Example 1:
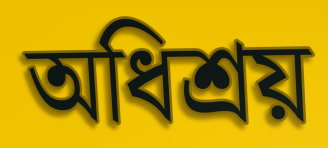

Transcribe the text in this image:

অধিশ্রয়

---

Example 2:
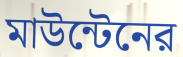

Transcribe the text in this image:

মাউন্টেনের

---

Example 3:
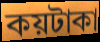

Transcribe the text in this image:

কয়টাকা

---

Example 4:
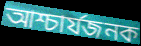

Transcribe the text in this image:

আশ্চার্যজনক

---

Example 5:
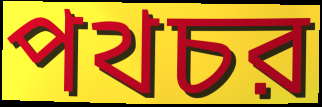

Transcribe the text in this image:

পথচর